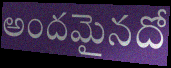
అందమైనదో